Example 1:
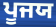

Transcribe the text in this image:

ਪੂਜਯ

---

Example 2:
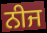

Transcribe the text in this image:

ਨੀਜ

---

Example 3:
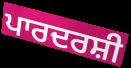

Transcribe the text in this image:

ਪਾਰਦਰਸ਼ੀ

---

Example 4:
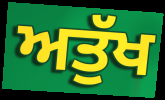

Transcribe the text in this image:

ਅਤੁੱਖ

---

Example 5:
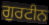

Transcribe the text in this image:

ਗੁਰਟੀਨ